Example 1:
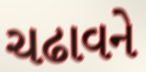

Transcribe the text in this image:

ચઢાવને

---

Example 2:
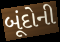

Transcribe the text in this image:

બૂંદોની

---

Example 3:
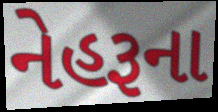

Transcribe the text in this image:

નેહરૂના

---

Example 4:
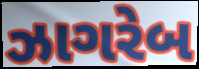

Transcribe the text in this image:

ઝાગરેબ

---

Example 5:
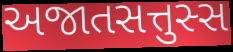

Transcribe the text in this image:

અજાતસત્તુસ્સ